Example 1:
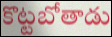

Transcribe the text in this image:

కొట్టబోతాడు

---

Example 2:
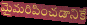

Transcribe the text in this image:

మైమరిపించడానికే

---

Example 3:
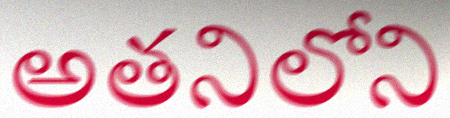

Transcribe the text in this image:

అతనిలోని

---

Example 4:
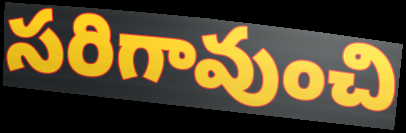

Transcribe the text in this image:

సరిగావుంచి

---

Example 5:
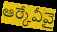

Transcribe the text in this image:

ఆర్కేవీవై